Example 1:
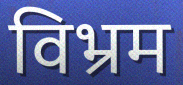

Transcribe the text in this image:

विभ्रम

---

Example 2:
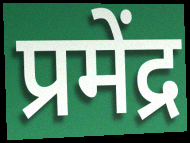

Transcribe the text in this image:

प्रमेंद्र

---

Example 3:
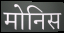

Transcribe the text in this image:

मोनिस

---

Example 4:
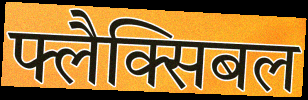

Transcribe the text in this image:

फ्लैक्सिबल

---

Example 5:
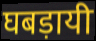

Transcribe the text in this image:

घबड़ायी